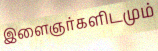
இளைஞர்களிடமும்